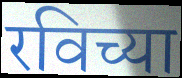
रविच्या